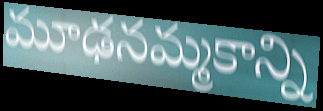
మూఢనమ్మకాన్ని